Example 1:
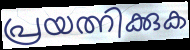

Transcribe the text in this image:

പ്രയത്നിക്കുക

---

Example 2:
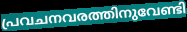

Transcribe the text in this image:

പ്രവചനവരത്തിനുവേണ്ടി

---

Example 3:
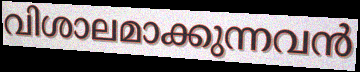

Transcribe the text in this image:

വിശാലമാക്കുന്നവൻ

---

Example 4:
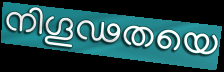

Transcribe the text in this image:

നിഗൂഢതയെ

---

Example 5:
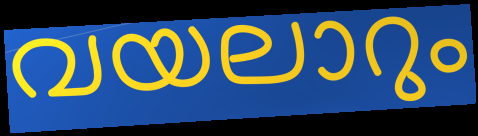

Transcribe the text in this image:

വയലാറും